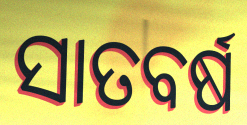
ସାତବର୍ଷ